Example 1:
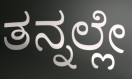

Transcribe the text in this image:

ತನ್ನಲ್ಲೇ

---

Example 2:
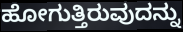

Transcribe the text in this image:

ಹೋಗುತ್ತಿರುವುದನ್ನು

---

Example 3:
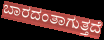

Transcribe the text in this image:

ಬಾರದಂತಾಗುತ್ತದೆ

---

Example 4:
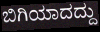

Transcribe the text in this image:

ಬಿಗಿಯಾದದ್ದು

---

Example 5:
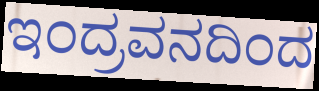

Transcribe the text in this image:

ಇಂದ್ರವನದಿಂದ